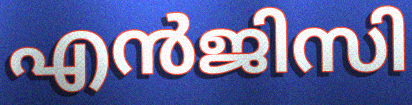
എൻജിസി